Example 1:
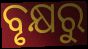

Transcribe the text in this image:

ବୃକ୍ଷରୁ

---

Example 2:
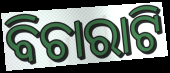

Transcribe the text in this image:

ବିଚାରାଟି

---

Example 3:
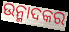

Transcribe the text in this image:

ଉନ୍ମାଦକର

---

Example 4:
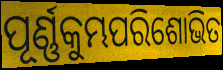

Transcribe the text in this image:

ପୂର୍ଣ୍ଣକୁମ୍ଭପରିଶୋଭିତ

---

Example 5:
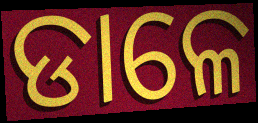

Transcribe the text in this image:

ଡାଳେ